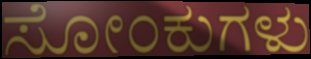
ಸೋಂಕುಗಳು